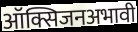
ऑक्सिजनअभावी